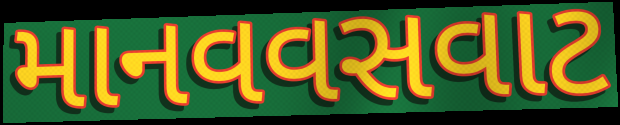
માનવવસવાટ